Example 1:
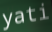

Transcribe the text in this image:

yati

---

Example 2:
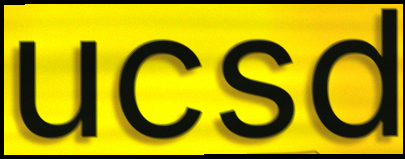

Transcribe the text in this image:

ucsd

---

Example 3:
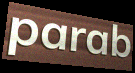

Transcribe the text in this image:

parab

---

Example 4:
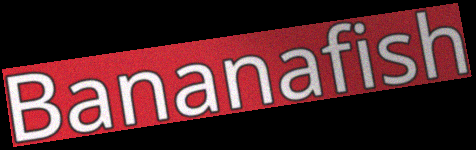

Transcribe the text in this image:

Bananafish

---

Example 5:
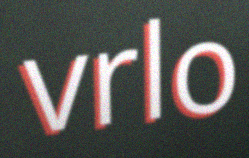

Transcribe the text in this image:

vrlo